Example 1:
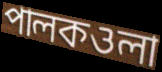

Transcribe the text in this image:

পালকওলা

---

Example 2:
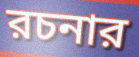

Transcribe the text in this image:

রচনার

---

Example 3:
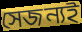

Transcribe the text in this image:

সেজন্যই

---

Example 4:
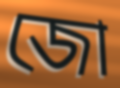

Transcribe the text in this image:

জো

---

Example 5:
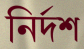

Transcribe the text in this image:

নির্দশ